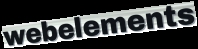
webelements